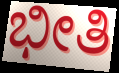
ಭೀತಿ